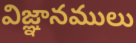
విజ్ఞానములు